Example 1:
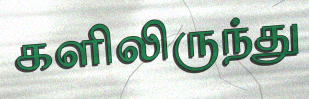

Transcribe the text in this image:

களிலிருந்து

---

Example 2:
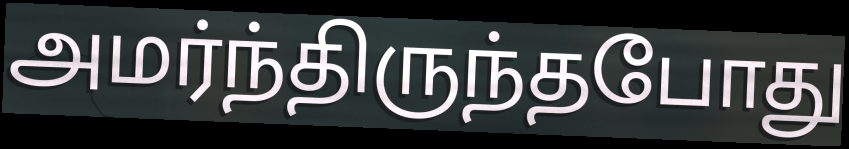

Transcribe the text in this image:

அமர்ந்திருந்தபோது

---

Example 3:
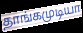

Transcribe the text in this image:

தாங்கமுடியா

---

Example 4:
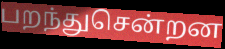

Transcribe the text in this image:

பறந்துசென்றன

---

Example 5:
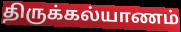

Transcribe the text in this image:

திருக்கல்யாணம்